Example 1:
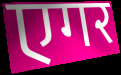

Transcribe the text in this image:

एगर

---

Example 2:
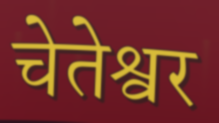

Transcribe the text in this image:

चेतेश्वर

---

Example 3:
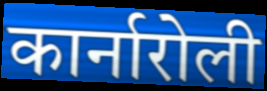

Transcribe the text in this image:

कार्नारोली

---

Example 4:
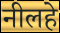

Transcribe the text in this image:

नीलहे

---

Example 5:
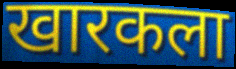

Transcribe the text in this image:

खारकला